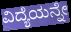
ವಿದ್ಯೆಯನ್ನೇ